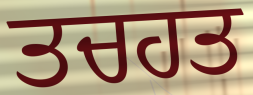
ਤਚਹਤ